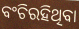
ବଂଚିରହିଥିବା